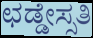
ಛಡ್ಡೇಸ್ಸತಿ